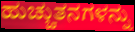
ಹುಚ್ಚುತನಗಳನ್ನು